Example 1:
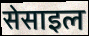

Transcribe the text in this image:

सेसाइल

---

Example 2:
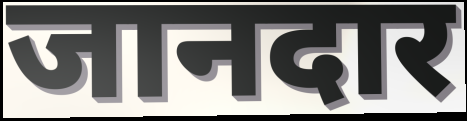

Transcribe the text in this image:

जानदार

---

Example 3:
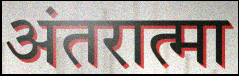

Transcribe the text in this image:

अंतरात्मा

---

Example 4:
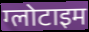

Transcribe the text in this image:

ग्लोटाइम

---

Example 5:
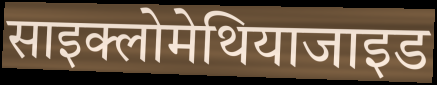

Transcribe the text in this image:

साइक्लोमेथियाजाइड